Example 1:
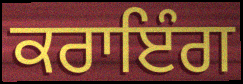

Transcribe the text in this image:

ਕਰਾਇੰਗ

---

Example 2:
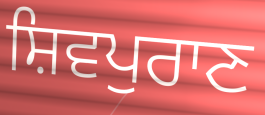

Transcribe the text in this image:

ਸ਼ਿਵਪੁਰਾਣ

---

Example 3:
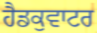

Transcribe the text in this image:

ਹੈਡਕੁਵਾਟਰ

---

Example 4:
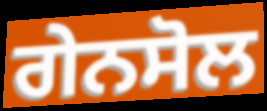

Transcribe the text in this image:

ਗੇਨਸੋਲ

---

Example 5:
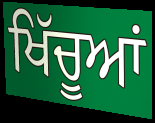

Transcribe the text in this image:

ਖਿੱਚੂਆਂ